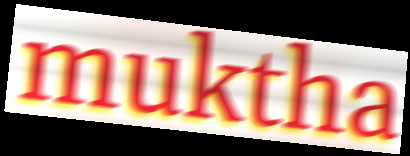
muktha